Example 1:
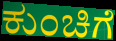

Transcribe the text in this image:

ಕುಂಚಿಗೆ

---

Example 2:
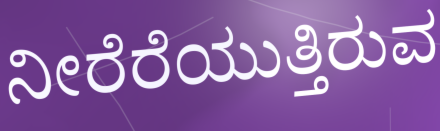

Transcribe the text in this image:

ನೀರೆರೆಯುತ್ತಿರುವ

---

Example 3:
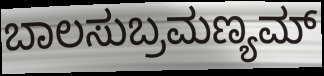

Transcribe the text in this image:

ಬಾಲಸುಬ್ರಮಣ್ಯಮ್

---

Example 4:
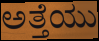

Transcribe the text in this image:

ಅತ್ತೆಯು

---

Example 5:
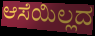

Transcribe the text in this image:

ಆಸೆಯಿಲ್ಲದ